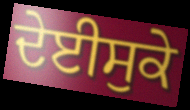
ਦੇਈਸੁਕੇ